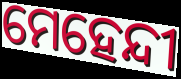
ମେହେନ୍ଦୀ